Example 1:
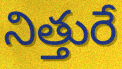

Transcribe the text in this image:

నిత్తురే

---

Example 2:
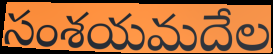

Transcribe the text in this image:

సంశయమదేల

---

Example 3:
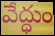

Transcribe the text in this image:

వేద్ధుం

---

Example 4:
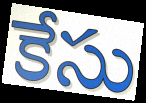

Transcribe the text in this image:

కేసు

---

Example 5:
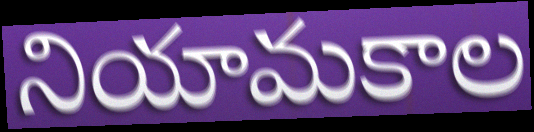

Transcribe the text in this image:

నియామకాల